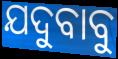
ଯଦୁବାବୁ